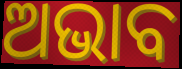
ଅଭାବ